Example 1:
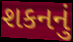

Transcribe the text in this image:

શકનનું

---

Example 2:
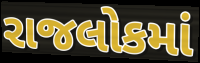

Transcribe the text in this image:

રાજલોકમાં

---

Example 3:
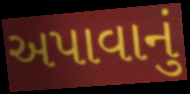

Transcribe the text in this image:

અપાવાનું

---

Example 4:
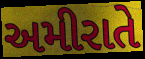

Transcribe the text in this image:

અમીરાતે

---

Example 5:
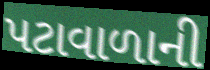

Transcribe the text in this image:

પટાવાળાની